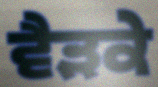
ਵੈੜਕੇ